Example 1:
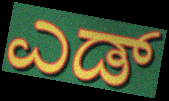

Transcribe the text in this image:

ಎಡ್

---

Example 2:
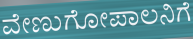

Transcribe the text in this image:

ವೇಣುಗೋಪಾಲನಿಗೆ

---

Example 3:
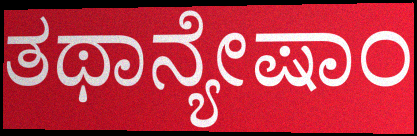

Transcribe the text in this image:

ತಥಾನ್ಯೇಷಾಂ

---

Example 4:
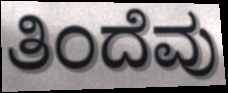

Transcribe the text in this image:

ತಿಂದೆವು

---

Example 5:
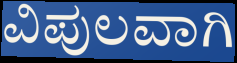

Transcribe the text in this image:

ವಿಪುಲವಾಗಿ